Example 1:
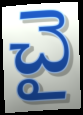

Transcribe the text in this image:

చై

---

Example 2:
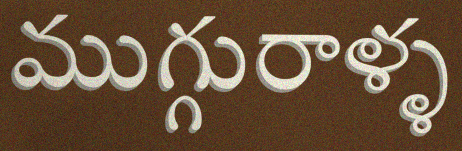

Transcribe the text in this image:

ముగ్గురాళ్ళ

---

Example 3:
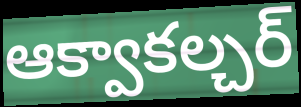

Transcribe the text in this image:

ఆక్వాకల్చర్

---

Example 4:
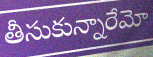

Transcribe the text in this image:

తీసుకున్నారేమో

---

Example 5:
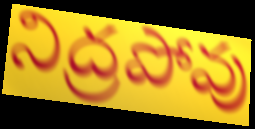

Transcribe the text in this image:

నిద్రపోవు